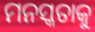
ମନସ୍କତାକୁ